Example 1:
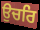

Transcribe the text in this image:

ਉਚਰਿ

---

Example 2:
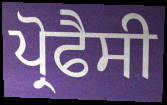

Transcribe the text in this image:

ਪ੍ਰੋਫੈਸੀ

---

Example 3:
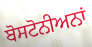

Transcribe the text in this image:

ਬੋਸਟੋਨੀਅਨਾਂ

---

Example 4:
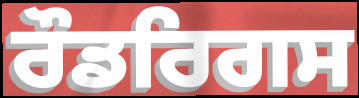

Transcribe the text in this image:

ਰੌਡਰਿਗਸ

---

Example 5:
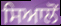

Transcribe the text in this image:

ਸਿਆਲੋਂ